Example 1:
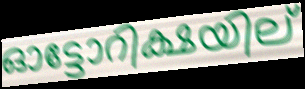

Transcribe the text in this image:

ഓട്ടോറിക്ഷയില്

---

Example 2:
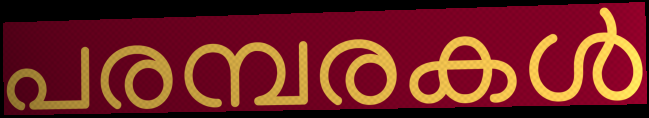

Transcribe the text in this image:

പരമ്പരകൾ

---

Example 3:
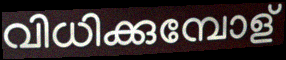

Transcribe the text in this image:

വിധിക്കുമ്പോള്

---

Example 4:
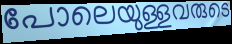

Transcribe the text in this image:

പോലെയുള്ളവരുടെ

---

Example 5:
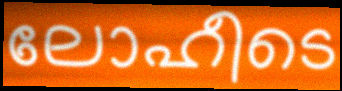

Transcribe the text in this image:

ലോഹീടെ